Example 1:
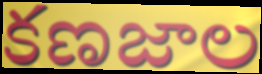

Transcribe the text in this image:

కణజాల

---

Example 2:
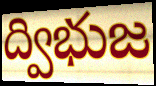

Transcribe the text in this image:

ద్విభుజ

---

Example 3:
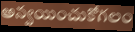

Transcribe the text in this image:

అన్వయించుకోగలం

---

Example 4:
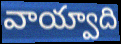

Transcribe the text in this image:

వాయ్వాది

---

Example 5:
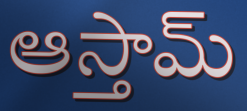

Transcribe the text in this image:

ఆస్తామ్